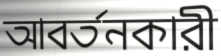
আবর্তনকারী